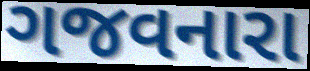
ગજવનારા